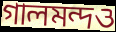
গালমন্দও